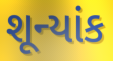
શૂન્યાંક